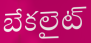
బేకలైట్